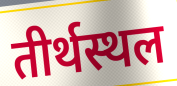
तीर्थस्थल